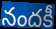
నందకీ